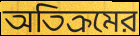
অতিক্রমের